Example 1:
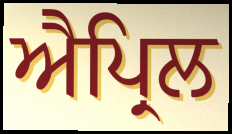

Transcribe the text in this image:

ਐਪ੍ਰਿਲ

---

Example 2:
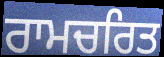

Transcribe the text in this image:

ਰਾਮਚਰਿਤ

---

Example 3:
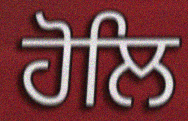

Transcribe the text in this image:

ਹੋਲਿ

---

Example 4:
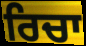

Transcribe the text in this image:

ਰਿਚਾ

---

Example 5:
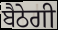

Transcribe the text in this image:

ਬੈਠੇਗੀ